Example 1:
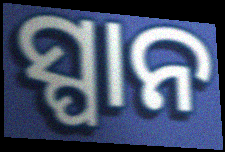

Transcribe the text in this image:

ସ୍ପାନ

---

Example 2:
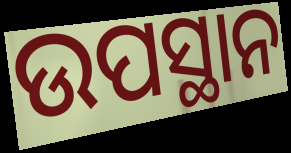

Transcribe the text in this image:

ଉପସ୍ଥାନ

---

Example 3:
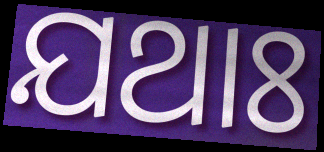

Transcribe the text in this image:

ଯଥାଃ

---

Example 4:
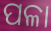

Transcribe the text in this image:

ପଳା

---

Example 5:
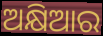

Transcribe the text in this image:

ଅକ୍ଷିଆର